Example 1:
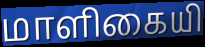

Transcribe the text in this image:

மாளிகையி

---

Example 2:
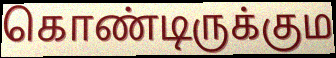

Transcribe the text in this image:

கொண்டிருக்கும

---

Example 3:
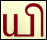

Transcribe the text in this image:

யி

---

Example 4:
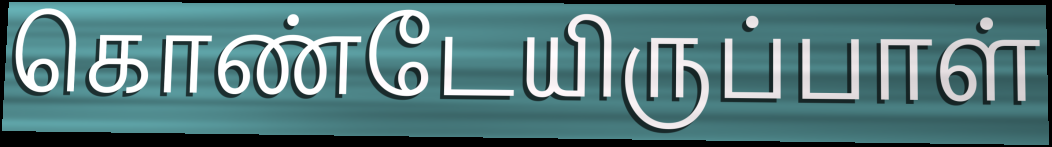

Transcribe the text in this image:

கொண்டேயிருப்பாள்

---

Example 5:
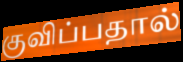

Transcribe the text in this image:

குவிப்பதால்